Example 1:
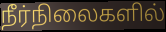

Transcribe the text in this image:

நீர்நிலைகளில்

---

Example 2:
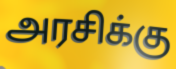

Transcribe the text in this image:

அரசிக்கு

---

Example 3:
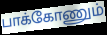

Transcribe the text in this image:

பாக்கோணும்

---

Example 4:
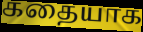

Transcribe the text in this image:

கதையாக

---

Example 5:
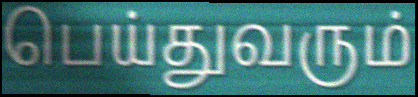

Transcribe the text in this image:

பெய்துவரும்